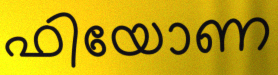
ഫിയോണ